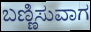
ಬಣ್ಣಿಸುವಾಗ